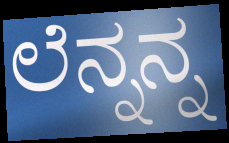
ಲೆನ್ನನ್ನ